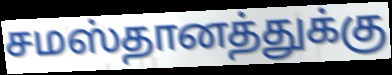
சமஸ்தானத்துக்கு